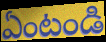
ఏంటండి